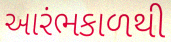
આરંભકાળથી